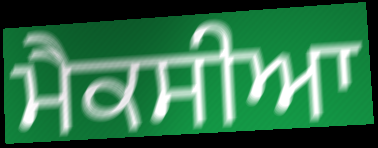
ਮੈਕਸੀਆ